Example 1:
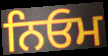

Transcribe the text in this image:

ਨਿਓਮ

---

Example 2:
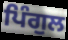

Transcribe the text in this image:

ਪਿੰਗੁਲ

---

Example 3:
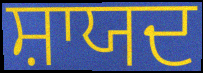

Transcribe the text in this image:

ਸ਼ਾਯਦ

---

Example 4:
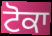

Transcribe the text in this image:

ਟੋਕਾ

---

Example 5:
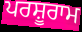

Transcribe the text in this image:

ਪਰਸ਼ੂਰਾਮ